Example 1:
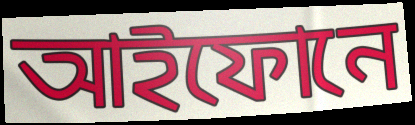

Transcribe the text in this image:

আইফোনে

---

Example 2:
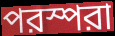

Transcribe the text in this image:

পরস্পরা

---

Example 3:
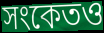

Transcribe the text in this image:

সংকেতও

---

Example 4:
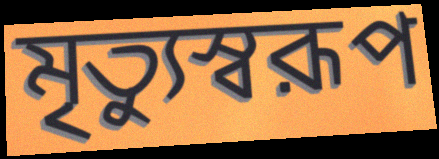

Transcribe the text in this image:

মৃত্যুস্বরূপ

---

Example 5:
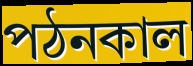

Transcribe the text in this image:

পঠনকাল